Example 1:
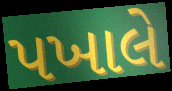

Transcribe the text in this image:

પખાલે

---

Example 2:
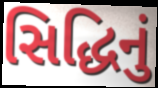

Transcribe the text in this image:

સિદ્ધિનું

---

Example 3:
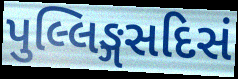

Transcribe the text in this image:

પુલ્લિઙ્ગસદિસં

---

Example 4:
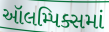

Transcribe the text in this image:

ઑલમ્પિક્સમાં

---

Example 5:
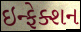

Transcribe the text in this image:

ઇન્ફેક્શન